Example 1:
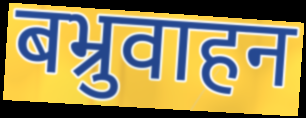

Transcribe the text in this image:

बभ्रुवाहन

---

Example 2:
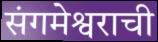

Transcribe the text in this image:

संगमेश्वराची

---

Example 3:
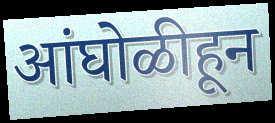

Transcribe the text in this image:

आंघोळीहून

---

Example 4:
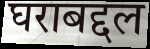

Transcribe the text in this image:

घराबद्दल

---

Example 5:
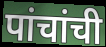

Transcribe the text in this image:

पांचांची